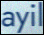
ayil